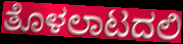
ತೊಳಲಾಟದಲಿ